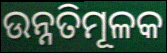
ଉନ୍ନତିମୂଳକ